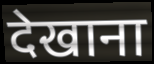
देखाना